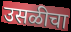
उसळीचा